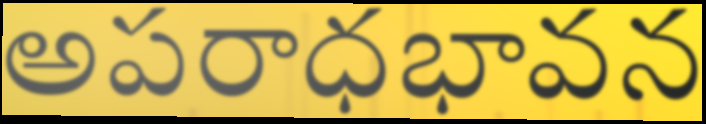
అపరాధభావన